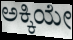
ಅಕ್ಕಿಯೇ